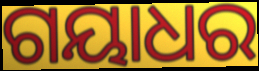
ଗୟାଧର